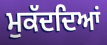
ਮੁਕੱਦਦਿਆਂ